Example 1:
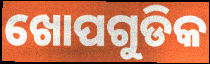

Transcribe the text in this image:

ଖୋପଗୁଡିକ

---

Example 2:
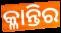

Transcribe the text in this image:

କ୍ଳାନ୍ତିର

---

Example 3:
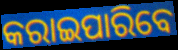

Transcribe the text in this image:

କରାଇପାରିବେ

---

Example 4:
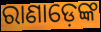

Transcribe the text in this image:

ରାଣାଡ଼େଙ୍କ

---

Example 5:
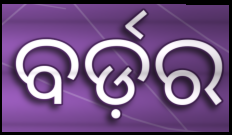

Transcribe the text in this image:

ବର୍ଡ଼ର